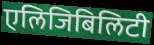
एलिजिबिलिटी